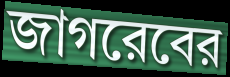
জাগরেবের